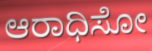
ಆರಾಧಿಸೋ